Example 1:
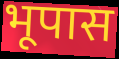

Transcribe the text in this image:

भूपास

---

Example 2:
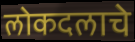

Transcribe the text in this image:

लोकदलाचे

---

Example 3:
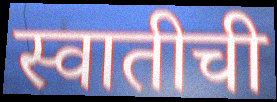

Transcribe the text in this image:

स्वातीची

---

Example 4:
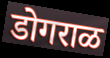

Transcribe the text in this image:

डोगराळ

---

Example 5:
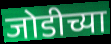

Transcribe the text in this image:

जोडीच्या